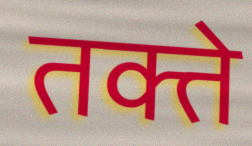
तक्ते